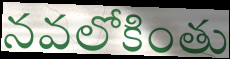
నవలోకింతు